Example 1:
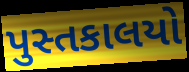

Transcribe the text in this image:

પુસ્તકાલયો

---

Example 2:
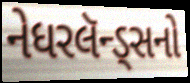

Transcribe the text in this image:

નેધરલૅન્ડ્સનો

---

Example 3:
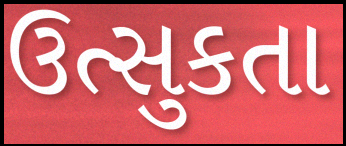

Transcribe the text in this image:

ઉત્સુકતા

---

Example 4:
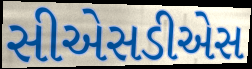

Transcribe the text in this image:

સીએસડીએસ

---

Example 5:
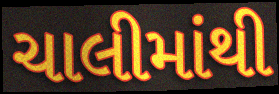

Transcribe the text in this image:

ચાલીમાંથી